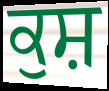
ਕੁਸ਼